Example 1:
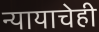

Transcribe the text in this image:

न्यायाचेही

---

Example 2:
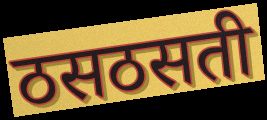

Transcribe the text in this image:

ठसठसती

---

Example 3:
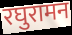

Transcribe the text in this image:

रघुरामन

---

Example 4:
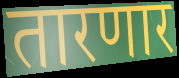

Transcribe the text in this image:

तारणार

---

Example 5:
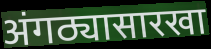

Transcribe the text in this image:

अंगठ्यासारखा